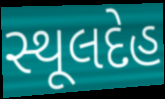
સ્થૂલદેહ